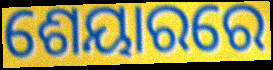
ଶେୟାରରେ